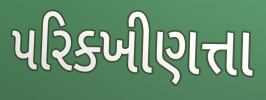
પરિક્ખીણત્તા